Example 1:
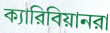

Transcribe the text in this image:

ক্যারিবিয়ানরা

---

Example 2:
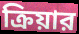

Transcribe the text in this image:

ক্রিয়ার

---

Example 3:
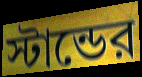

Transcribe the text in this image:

স্টান্ডের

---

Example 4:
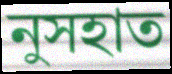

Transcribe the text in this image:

নুসহাত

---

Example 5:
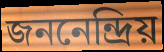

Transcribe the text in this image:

জননেন্দ্রিয়